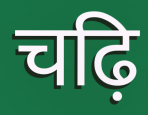
चढ़ि